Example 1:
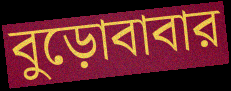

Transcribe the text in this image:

বুড়োবাবার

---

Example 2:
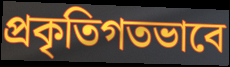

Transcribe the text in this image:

প্রকৃতিগতভাবে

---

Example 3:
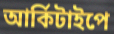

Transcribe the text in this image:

আর্কিটাইপে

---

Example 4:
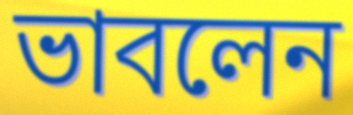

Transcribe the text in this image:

ভাবলেন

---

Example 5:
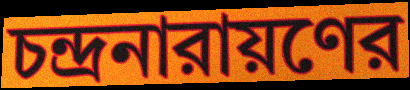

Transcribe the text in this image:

চন্দ্রনারায়ণের